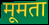
मूमता